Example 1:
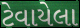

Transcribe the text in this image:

ટેવાયેલા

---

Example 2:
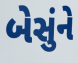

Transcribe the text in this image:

બેસુંને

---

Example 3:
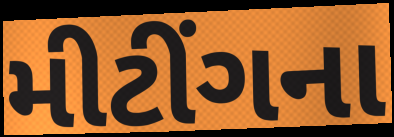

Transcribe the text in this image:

મીટીંગના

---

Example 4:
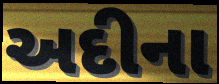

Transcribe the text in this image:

અદીના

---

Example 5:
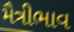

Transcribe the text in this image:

મૈત્રીભાવ